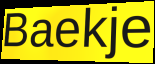
Baekje